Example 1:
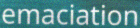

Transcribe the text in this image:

emaciation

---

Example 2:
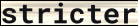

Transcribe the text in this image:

stricter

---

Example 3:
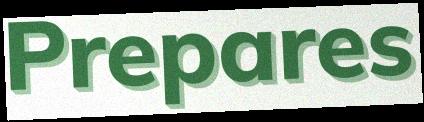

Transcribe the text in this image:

Prepares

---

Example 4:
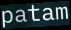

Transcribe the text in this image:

patam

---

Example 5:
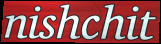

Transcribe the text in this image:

nishchit